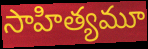
సాహిత్యమూ